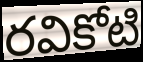
రవికోటి